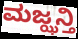
ಮಜ್ಝನ್ತಿ